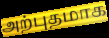
அற்புதமாக